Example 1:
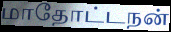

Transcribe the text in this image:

மாதோட்டநன்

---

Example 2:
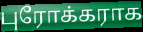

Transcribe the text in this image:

புரோக்கராக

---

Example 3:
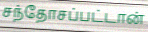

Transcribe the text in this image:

சந்தோசப்பட்டான்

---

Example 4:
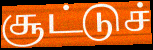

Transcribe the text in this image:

சூட்டுச்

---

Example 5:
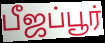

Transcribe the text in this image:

பீஜப்பூர்